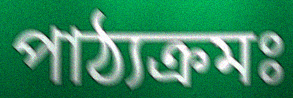
পাঠ্যক্ৰমঃ